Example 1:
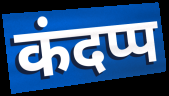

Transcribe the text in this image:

कंदप्प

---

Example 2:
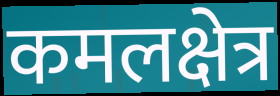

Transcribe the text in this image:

कमलक्षेत्र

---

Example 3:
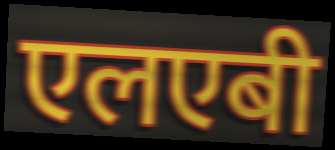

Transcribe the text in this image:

एलएबी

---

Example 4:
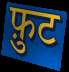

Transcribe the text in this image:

फ़ुट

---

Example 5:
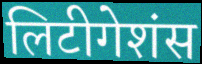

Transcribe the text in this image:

लिटीगेशंस